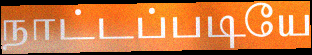
நாட்டப்படியே